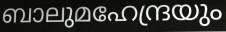
ബാലുമഹേന്ദ്രയും